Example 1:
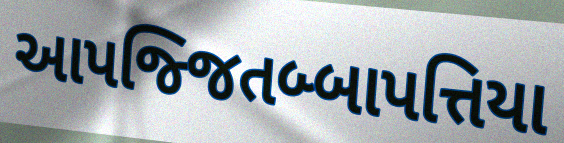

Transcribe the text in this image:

આપજ્જિતબ્બાપત્તિયા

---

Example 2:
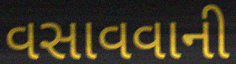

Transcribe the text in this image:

વસાવવાની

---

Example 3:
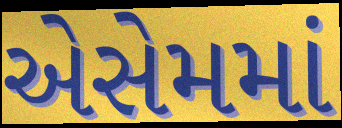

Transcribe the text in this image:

એસેમમાં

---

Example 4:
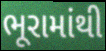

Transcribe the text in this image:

ભૂરામાંથી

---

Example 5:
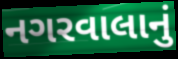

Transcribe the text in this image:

નગરવાલાનું